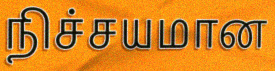
நிச்சயமான